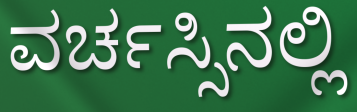
ವರ್ಚಸ್ಸಿನಲ್ಲಿ